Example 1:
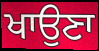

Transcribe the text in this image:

ਖਾਉਣਾ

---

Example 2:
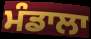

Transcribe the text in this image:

ਮੰਡਾਲਾ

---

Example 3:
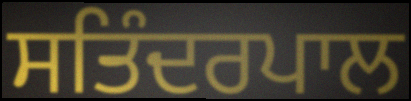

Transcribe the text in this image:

ਸਤਿੰਦਰਪਾਲ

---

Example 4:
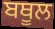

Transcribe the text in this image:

ਬਥੂਲ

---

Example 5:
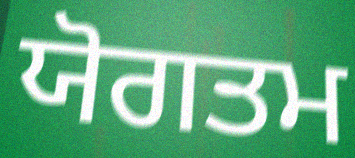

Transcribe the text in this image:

ਯੋਗਤਮ